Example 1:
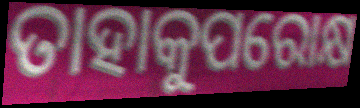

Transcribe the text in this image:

ତାହାକୁପରୋକ୍ଷ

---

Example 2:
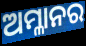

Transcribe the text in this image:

ଅମ୍ଳାନର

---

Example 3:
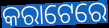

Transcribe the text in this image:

କରାଟେରେ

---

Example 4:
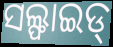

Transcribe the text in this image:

ସଲ୍ଫାଇଡ୍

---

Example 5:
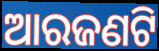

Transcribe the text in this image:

ଆରଜଣଟି